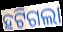
ହଟିଗଲା